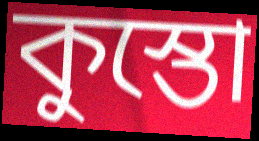
কুস্তো